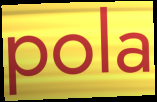
pola